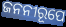
ଜନନୀରୂପେ